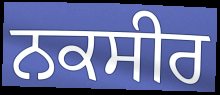
ਨਕਸੀਰ